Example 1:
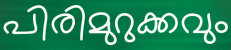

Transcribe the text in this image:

പിരിമുറുക്കവും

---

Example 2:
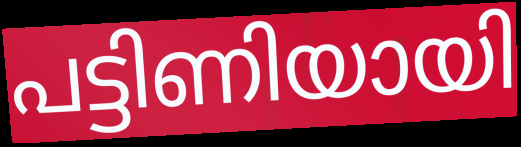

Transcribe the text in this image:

പട്ടിണിയായി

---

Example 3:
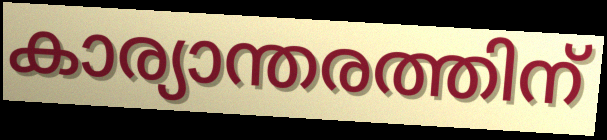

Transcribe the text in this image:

കാര്യാന്തരത്തിന്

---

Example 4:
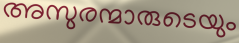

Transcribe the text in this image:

അസുരന്മാരുടെയും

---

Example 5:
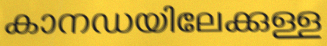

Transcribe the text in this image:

കാനഡയിലേക്കുള്ള